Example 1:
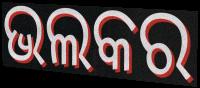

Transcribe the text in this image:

ଭଲକର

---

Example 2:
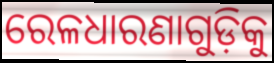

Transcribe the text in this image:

ରେଳଧାରଣାଗୁଡ଼ିକୁ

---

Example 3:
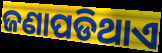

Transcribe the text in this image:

ଜଣାପଡିଥାଏ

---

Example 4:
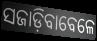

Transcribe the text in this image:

ସଜାଡ଼ିବାବେଳେ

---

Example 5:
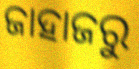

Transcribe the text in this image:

ଜାହାଜରୁ